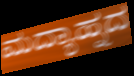
ಮದ್ಯಾಹ್ನದ